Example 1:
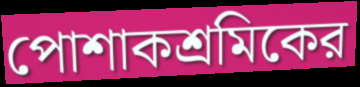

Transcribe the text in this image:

পোশাকশ্রমিকের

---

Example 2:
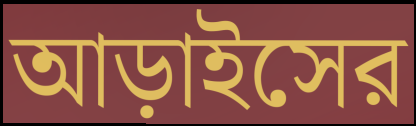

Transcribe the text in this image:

আড়াইসের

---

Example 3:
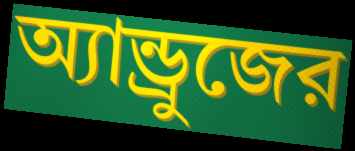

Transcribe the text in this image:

অ্যান্ড্রুজের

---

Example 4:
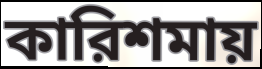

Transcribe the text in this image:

কারিশমায়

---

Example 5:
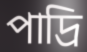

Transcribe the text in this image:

পাদ্রি